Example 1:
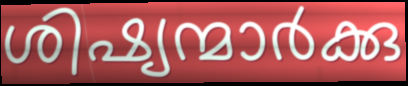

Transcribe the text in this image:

ശിഷ്യന്മാർക്കു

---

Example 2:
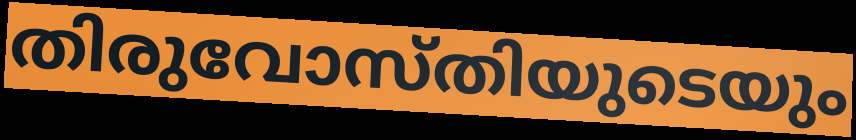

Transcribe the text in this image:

തിരുവോസ്തിയുടെയും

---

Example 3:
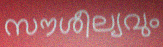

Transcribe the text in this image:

സൗശീല്യവും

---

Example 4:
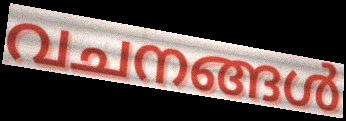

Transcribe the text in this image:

വചനങ്ങൾ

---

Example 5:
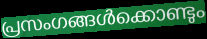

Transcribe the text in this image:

പ്രസംഗങ്ങൾക്കൊണ്ടും